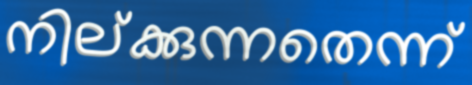
നില്ക്കുന്നതെന്ന്